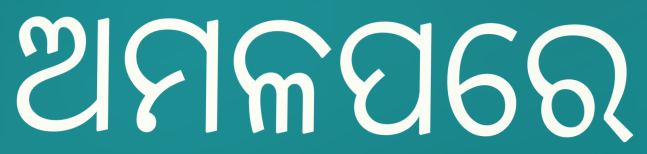
ଅମଳପରେ